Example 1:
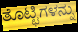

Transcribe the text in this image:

ತೊಟ್ಟಿಗಳನ್ನು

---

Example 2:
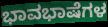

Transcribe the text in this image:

ಭಾವಭಾಷೆಗಳ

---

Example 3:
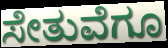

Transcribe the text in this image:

ಸೇತುವೆಗೂ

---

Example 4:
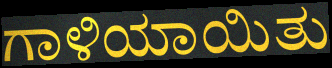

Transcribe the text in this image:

ಗಾಳಿಯಾಯಿತು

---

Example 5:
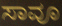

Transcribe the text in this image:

ಸಾವೂ